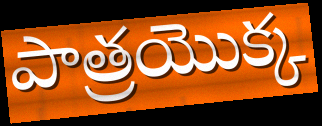
పాత్రయొక్క